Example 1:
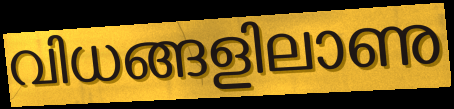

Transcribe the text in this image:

വിധങ്ങളിലാണു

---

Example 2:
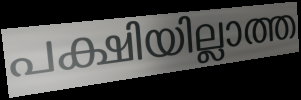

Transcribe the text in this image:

പക്ഷിയില്ലാത്ത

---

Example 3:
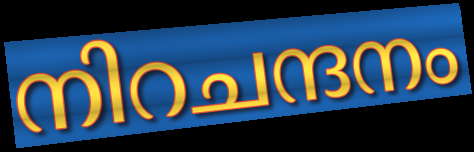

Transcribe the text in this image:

നിറചന്ദനം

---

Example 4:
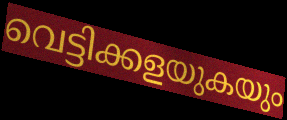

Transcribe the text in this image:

വെട്ടിക്കളയുകയും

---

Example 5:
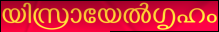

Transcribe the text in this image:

യിസ്രായേൽഗൃഹം